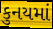
કુનયમાં